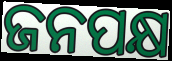
ଜନପକ୍ଷ